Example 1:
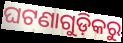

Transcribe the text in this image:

ଘଟଣାଗୁଡ଼ିକରୁ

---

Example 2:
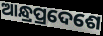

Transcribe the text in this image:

ଆନ୍ଧ୍ରପ୍ରଦେଶେ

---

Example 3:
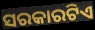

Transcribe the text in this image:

ସରକାରଟିଏ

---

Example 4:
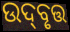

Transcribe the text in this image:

ଉଦ୍‌ବୃତ୍ତ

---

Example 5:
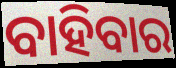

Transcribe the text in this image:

ବାହିବାର